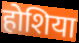
होशिया